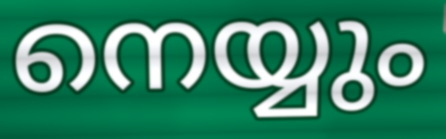
നെയ്യും